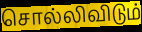
சொல்லிவிடும்